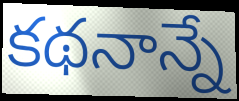
కథనాన్నే